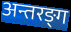
अन्तरङ्ग